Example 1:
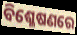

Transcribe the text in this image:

ବିଶ୍ଳେଷଣରେ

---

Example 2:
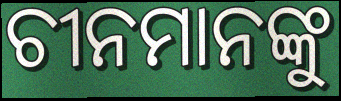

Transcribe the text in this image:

ଚୀନମାନଙ୍କୁ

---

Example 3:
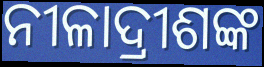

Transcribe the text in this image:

ନୀଳାଦ୍ରୀଶଙ୍କ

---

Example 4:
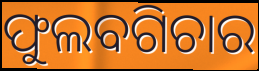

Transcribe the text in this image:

ଫୁଲବଗିଚାର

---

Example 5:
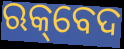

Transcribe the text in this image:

ଋକ୍‌ବେଦ